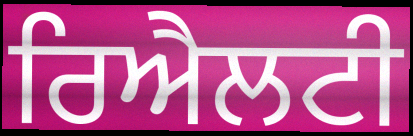
ਰਿਐਲਟੀ